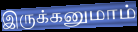
இருக்கனுமாம்